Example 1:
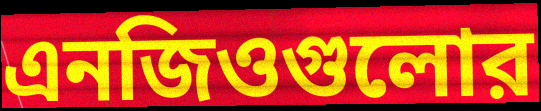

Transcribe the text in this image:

এনজিওগুলোর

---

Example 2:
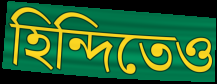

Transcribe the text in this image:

হিন্দিতেও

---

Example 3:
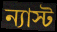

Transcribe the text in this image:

ন্যাস্ট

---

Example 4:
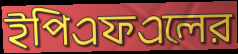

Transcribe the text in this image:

ইপিএফএলের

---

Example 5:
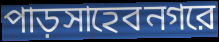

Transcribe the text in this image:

পাড়সাহেবনগরে